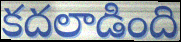
కదలాడింది